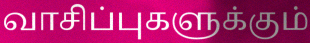
வாசிப்புகளுக்கும்